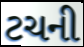
ટચની